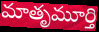
మాతృమూర్తి